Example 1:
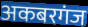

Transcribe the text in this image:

अकबरगंज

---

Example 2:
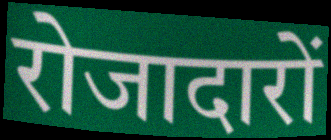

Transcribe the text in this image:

रोजादारों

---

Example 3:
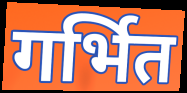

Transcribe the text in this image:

गर्भित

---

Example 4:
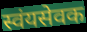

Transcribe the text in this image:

स्वंयसेवक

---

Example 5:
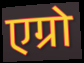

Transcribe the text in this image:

एग्रो